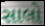
સાલો